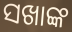
ସଖାଙ୍କ